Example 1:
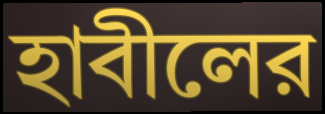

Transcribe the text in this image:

হাবীলের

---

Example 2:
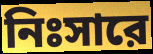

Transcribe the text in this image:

নিঃসারে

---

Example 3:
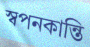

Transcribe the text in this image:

স্বপনকান্তি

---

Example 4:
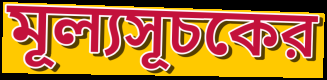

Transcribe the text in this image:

মূল্যসূচকের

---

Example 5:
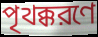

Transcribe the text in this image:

পৃথক্করণে